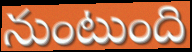
నుంటుంది